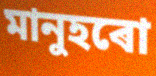
মানুহৰো